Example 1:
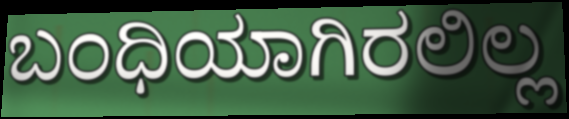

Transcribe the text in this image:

ಬಂಧಿಯಾಗಿರಲಿಲ್ಲ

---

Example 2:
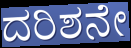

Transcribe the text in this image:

ದರಿಶನೇ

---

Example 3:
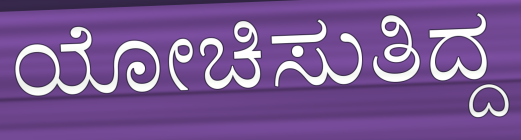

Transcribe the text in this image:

ಯೋಚಿಸುತಿದ್ದ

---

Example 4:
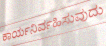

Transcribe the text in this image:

ಕಾರ್ಯನಿರ್ವಹಿಸುವುದು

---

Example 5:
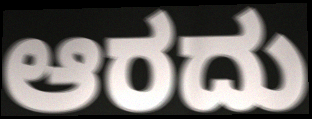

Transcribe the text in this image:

ಆರದು